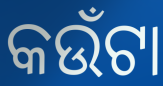
କଉଁଟା